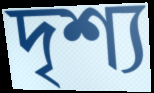
দৃশ্য়